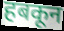
हबकून